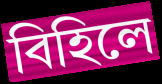
বিহিলে